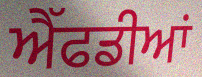
ਐੱਫਡੀਆਂ